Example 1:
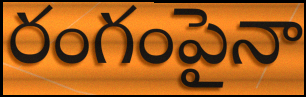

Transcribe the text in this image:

రంగంపైనా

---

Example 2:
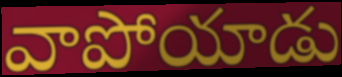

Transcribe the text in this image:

వాపోయాడు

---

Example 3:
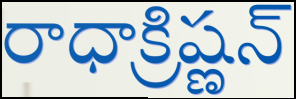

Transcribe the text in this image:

రాధాక్రిష్ణన్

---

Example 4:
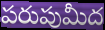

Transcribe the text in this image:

పరుపుమీద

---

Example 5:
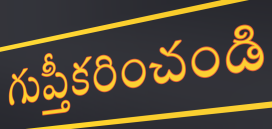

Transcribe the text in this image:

గుప్తీకరించండి